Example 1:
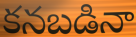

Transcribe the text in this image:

కనబడినా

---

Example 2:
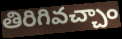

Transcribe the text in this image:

తిరిగివచ్చాం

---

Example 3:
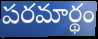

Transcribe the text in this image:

పరమార్థం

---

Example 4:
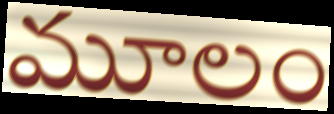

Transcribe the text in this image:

మూలం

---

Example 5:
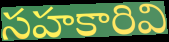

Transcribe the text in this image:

సహకారివి